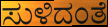
ಸುಳಿದಂತೆ